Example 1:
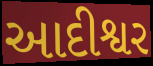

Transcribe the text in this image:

આદીશ્વર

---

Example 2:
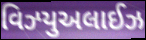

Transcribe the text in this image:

વિઝ્યુઅલાઈઝ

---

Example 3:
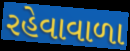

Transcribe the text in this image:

રહેવાવાળા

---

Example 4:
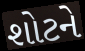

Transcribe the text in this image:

શોટને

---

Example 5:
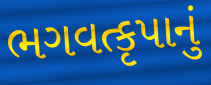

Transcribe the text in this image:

ભગવત્કૃપાનું